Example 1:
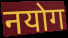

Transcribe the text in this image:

नयोग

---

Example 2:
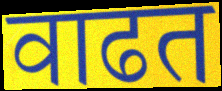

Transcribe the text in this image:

वाढत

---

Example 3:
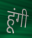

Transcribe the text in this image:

हूंगी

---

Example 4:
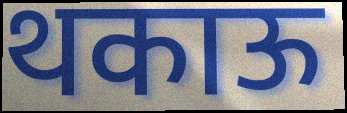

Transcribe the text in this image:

थकाऊ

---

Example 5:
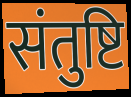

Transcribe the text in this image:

संतुष्टि